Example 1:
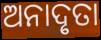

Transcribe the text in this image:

ଅନାଦୃତା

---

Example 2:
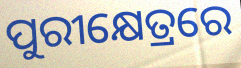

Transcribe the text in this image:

ପୁରୀକ୍ଷେତ୍ରରେ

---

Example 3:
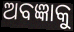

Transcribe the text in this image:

ଅବଜ୍ଞାକୁ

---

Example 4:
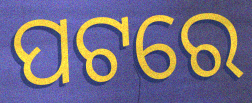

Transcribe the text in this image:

ପଟରେ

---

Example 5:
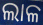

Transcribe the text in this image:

ଲାଳ